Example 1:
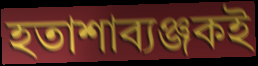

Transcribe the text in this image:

হতাশাব্যঞ্জকই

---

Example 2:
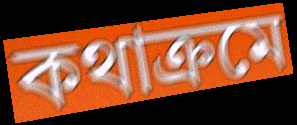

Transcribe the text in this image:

কথাক্রমে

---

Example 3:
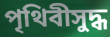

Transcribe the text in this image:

পৃথিবীসুদ্ধ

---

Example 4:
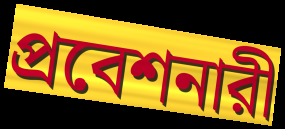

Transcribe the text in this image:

প্রবেশনারী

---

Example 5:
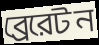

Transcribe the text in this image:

ব্রেরেটন